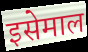
इसेमाल